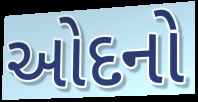
ઓદનો